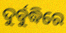
ଦୁର୍ବୁଦ୍ଧିରେ